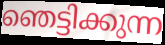
ഞെട്ടിക്കുന്ന